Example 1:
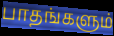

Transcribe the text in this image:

பாதங்களும்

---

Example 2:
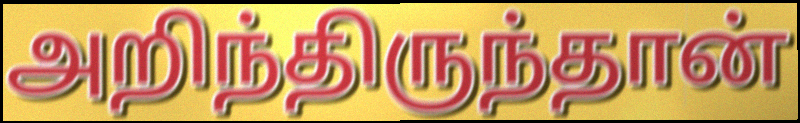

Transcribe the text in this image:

அறிந்திருந்தான்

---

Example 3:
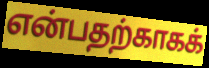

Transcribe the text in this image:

என்பதற்காகக்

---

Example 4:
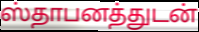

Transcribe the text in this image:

ஸ்தாபனத்துடன்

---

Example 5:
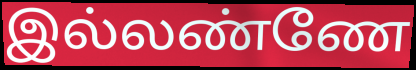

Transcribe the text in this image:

இல்லண்ணே